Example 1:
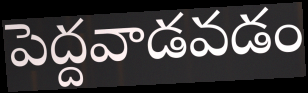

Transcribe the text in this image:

పెద్దవాడవడం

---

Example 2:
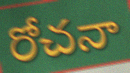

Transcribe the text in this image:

రోచనా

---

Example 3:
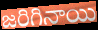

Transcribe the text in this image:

జరిగినాయి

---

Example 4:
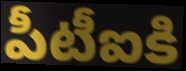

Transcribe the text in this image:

పీటీఐకి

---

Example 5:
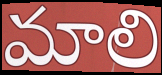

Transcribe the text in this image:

మాలి